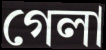
গেলা